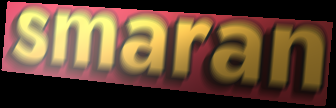
smaran